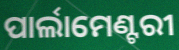
ପାର୍ଲାମେଣ୍ଟରୀ